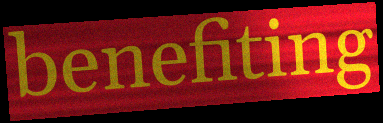
benefiting